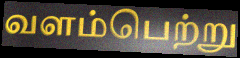
வளம்பெற்று